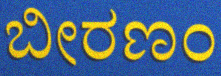
ಬೀರಣಂ